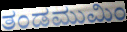
ತಂಡಮುಮಿಂ